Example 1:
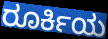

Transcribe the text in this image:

ರೂರ್ಕಿಯ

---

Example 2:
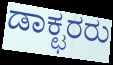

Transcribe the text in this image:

ಡಾಕ್ಟರರು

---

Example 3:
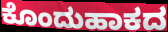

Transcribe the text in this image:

ಕೊಂದುಹಾಕದ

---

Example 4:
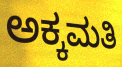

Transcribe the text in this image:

ಅಕ್ಕಮತಿ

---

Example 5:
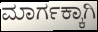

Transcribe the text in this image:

ಮಾರ್ಗಕ್ಕಾಗಿ